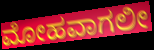
ಮೋಹವಾಗಲೀ